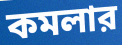
কমলার